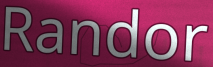
Randor